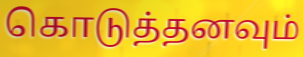
கொடுத்தனவும்